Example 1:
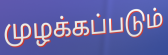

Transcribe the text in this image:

முழக்கப்படும்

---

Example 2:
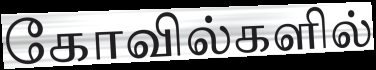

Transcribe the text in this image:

கோவில்களில்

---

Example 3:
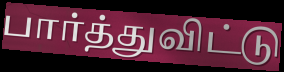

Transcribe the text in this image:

பார்த்துவிட்டு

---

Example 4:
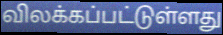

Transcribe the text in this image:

விலக்கப்பட்டுள்ளது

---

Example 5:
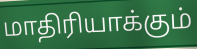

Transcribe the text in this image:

மாதிரியாக்கும்